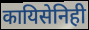
कायिसेनिही